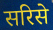
सरिसे